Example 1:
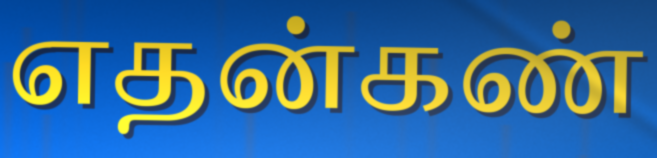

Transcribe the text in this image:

எதன்கண்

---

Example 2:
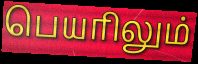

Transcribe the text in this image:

பெயரிலும்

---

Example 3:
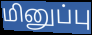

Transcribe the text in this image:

மினுப்பு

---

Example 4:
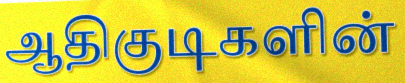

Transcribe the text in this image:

ஆதிகுடிகளின்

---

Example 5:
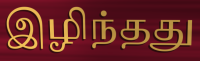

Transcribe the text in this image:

இழிந்தது